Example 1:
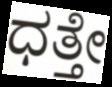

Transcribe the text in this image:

ಧತ್ತೇ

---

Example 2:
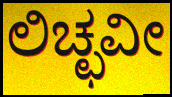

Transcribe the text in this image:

ಲಿಚ್ಛವೀ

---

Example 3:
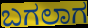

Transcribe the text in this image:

ಬಗಲಾಗ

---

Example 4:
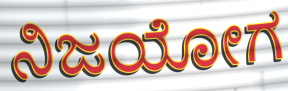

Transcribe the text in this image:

ನಿಜಯೋಗ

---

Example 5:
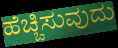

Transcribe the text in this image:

ಹೆಚ್ಚಿಸುವುದು